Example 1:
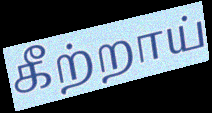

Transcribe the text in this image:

கீற்றாய்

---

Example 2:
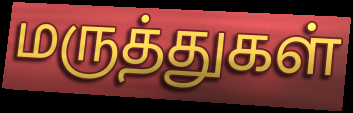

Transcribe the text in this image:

மருத்துகள்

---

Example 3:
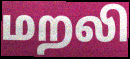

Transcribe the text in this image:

மறலி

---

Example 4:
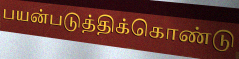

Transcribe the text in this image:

பயன்படுத்திக்கொண்டு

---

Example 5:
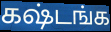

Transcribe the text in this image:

கஷ்டங்க